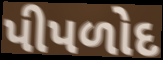
પીપળોદ